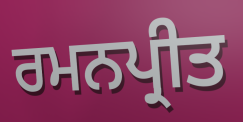
ਰਮਨਪ੍ਰੀਤ